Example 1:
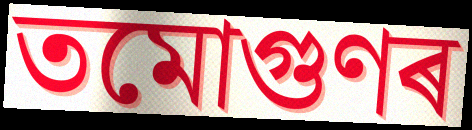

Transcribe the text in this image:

তমোগুণৰ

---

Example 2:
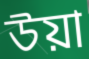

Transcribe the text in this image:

উয়া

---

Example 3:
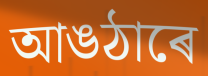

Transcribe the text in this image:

আঙঠাৰে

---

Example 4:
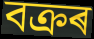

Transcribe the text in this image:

বক্ৰৰ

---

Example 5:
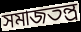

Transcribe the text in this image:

সমাজতন্ত্ৰ